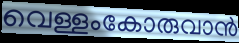
വെള്ളംകോരുവാൻ